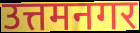
उत्तमनगर